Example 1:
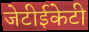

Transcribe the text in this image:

जेटीईकेटी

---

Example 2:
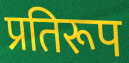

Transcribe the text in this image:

प्रतिरूप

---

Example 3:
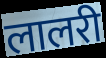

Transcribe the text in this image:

लालरी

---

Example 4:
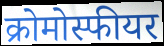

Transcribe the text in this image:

क्रोमोस्फीयर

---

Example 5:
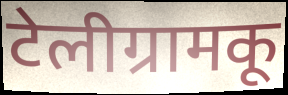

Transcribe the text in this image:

टेलीग्रामकू